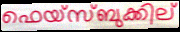
ഫെയ്സ്ബുക്കില്